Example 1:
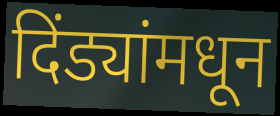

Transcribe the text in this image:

दिंड्यांमधून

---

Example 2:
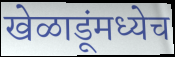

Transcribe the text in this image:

खेळाडूंमध्येच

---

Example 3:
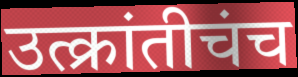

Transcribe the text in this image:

उत्क्रांतीचंच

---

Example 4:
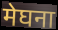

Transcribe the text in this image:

मेघना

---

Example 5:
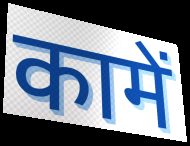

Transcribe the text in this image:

कामें